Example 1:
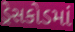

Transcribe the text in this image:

ડ્રેસકોડમાં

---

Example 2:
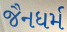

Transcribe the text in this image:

જૈનધર્મ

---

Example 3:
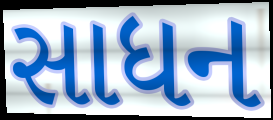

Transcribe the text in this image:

સાધન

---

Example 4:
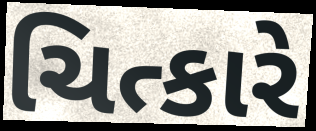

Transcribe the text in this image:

ચિત્કારે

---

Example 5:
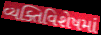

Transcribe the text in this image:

વ્યક્તિવિશેષમાં